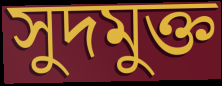
সুদমুক্ত